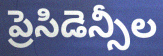
ప్రెసిడెన్సీల